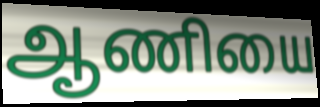
ஆணியை